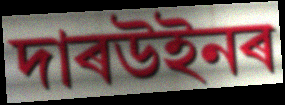
দাৰউইনৰ